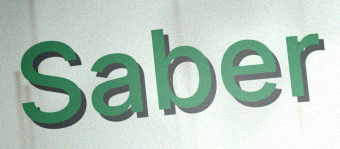
Saber